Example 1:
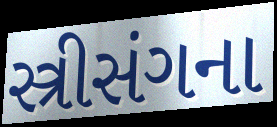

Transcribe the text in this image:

સ્ત્રીસંગના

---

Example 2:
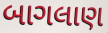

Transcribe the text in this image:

બાગલાણ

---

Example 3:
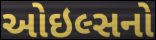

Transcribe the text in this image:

ઓઇલ્સનો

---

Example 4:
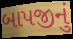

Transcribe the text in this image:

બાપજીનું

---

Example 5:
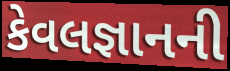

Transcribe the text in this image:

કેવલજ્ઞાનની